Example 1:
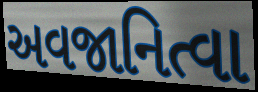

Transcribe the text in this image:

અવજાનિત્વા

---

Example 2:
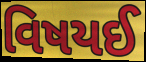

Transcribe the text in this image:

વિષયઈ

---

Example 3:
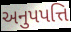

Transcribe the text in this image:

અનુપપત્તિ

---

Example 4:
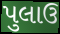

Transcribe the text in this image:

પુલાઉ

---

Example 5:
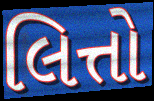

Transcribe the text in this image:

લિત્તો